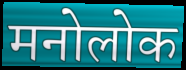
मनोलोक